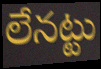
లేనట్టు